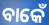
ବାକେଁ